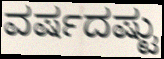
ವರ್ಷದಷ್ಟು